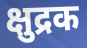
क्षुद्रक